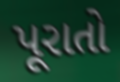
પૂરાતો